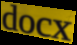
docx